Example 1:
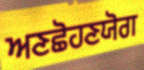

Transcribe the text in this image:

ਅਣਛੋਹਣਯੋਗ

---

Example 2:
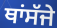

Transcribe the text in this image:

ਥਾਂਸੱਜੇ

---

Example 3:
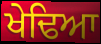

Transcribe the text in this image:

ਖੇਢਿਆ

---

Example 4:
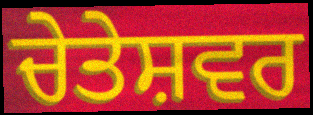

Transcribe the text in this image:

ਚੇਤੇਸ਼ਵਰ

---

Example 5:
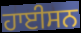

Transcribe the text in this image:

ਹਾਈਸਨ